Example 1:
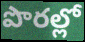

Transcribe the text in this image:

పొరల్లో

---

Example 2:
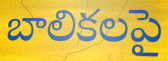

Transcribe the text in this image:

బాలికలపై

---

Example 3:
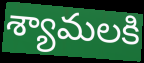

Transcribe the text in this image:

శ్యామలకి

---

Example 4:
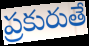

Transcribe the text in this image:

ప్రకురుతే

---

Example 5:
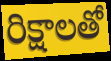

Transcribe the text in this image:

రిక్షాలతో